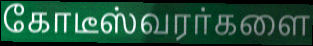
கோடீஸ்வரர்களை